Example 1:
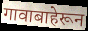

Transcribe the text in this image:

गावाबाहेरून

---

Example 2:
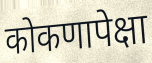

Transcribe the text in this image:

कोकणापेक्षा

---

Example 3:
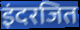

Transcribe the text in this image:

इंदरजित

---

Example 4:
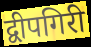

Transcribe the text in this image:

द्वीपगिरी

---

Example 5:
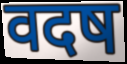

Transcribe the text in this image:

वदष